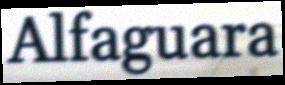
Alfaguara